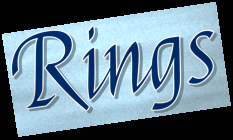
Rings